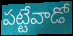
పట్టేవాడో